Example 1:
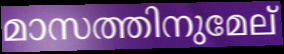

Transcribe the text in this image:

മാസത്തിനുമേല്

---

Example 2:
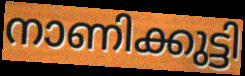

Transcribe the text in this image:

നാണിക്കുട്ടി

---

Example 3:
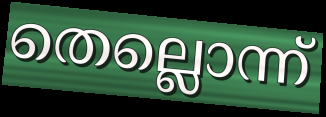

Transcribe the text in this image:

തെല്ലൊന്ന്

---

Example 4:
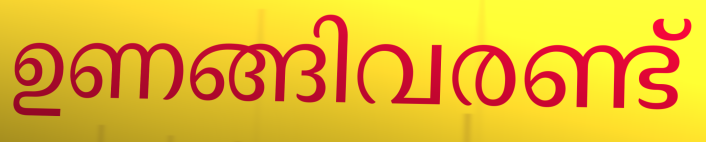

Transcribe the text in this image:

ഉണങ്ങിവരണ്ട്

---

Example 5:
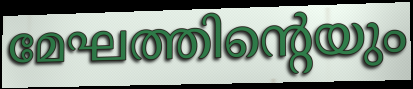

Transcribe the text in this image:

മേഘത്തിന്റെയും